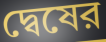
দ্বেষের